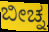
ಬೀಚ್ನ